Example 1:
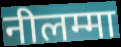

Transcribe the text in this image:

नीलम्मा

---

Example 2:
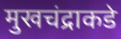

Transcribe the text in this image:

मुखचंद्राकडे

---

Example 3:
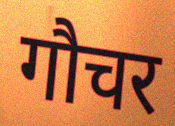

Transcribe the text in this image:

गौचर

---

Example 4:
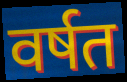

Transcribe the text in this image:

वर्षत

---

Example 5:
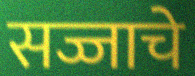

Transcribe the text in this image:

सज्जाचे